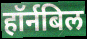
हॉर्नबिल